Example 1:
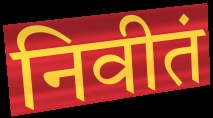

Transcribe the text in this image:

निवीतं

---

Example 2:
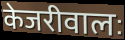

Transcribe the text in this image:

केजरीवालः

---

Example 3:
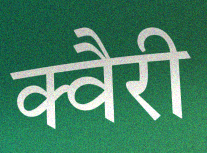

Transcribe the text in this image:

क्वैरी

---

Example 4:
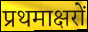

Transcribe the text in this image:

प्रथमाक्षरों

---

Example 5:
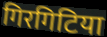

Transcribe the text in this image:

गिरगिटिया